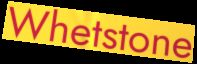
Whetstone